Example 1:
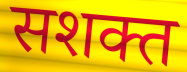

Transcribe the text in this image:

सशक्त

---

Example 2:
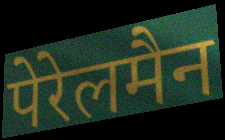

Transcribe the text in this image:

पेरेलमैन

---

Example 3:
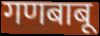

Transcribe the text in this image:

गणबाबू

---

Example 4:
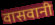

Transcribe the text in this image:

वासवानी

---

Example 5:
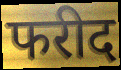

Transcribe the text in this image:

फरीद